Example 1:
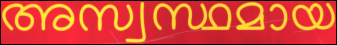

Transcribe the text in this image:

അസ്വസ്ഥമായ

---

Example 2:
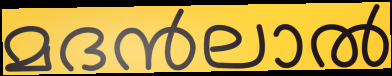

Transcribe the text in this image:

മദൻലാൽ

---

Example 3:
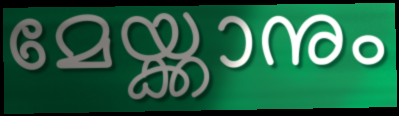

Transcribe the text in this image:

മേയ്ക്കാനും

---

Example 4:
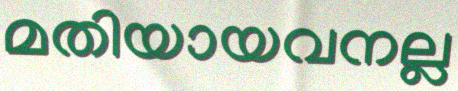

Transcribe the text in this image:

മതിയായവനല്ല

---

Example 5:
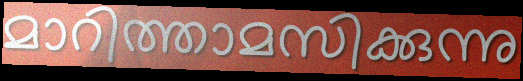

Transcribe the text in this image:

മാറിത്താമസിക്കുന്നു